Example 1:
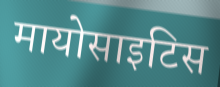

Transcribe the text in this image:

मायोसाइटिस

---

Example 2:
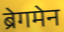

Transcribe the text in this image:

ब्रेगमेन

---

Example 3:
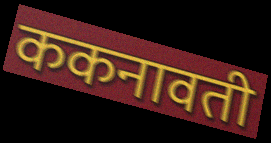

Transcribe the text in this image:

ककनावती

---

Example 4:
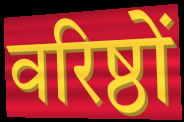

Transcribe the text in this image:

वरिष्ठों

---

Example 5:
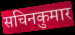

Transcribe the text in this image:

सचिनकुमार